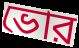
ভোর